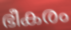
ഭീകരം